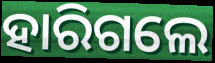
ହାରିଗଲେ